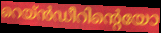
റെയ്ൻഡീറിന്റെയോ